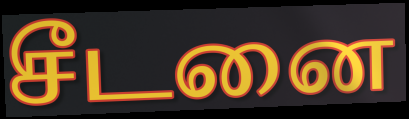
சீடனை